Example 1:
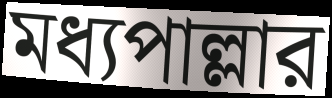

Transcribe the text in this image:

মধ্যপাল্লার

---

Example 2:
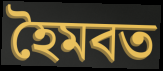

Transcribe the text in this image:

হৈমবত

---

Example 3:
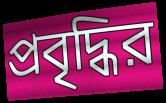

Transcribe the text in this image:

প্রবৃদ্ধির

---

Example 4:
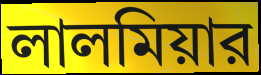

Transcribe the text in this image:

লালমিয়ার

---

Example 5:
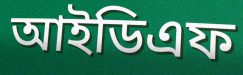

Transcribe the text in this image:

আইডিএফ